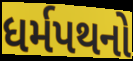
ધર્મપથનો